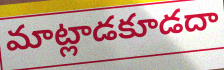
మాట్లాడకూడదా